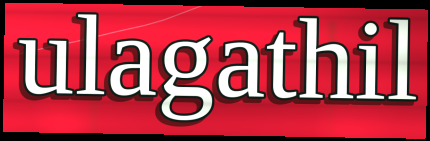
ulagathil